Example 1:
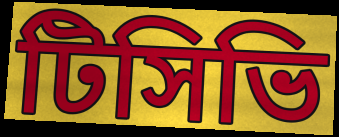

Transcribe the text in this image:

টিসিভি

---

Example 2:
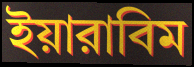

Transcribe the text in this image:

ইয়ারাবিম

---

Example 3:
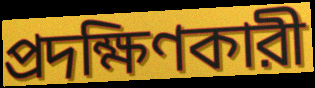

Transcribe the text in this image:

প্রদক্ষিণকারী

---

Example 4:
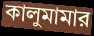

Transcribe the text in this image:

কালুমামার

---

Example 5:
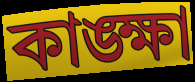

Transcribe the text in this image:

কাঙ্ক্ষা